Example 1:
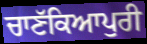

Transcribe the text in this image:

ਚਾਣੱਕਿਆਪੁਰੀ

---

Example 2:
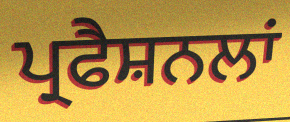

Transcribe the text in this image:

ਪ੍ਰਫੈਸ਼ਨਲਾਂ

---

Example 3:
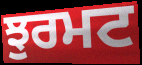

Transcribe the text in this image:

ਝੁਰਮਟ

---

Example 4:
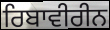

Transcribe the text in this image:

ਰਿਬਾਵੀਰੀਨ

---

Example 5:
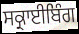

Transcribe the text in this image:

ਸਕ੍ਰਾਈਬਿੰਗ